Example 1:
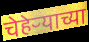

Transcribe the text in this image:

चेहेऱ्याच्या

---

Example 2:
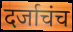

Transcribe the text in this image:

दर्जाचंच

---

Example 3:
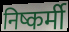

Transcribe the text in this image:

निष्कर्मी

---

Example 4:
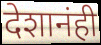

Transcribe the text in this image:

देशानंही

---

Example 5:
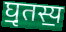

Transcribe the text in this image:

घृ॒तस्य॒